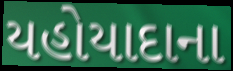
યહોયાદાના